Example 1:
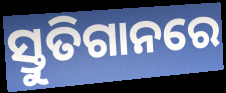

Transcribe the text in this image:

ସ୍ତୁତିଗାନରେ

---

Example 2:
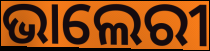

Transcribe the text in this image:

ଭାଲେରୀ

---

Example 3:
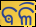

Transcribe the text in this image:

ଵଳି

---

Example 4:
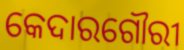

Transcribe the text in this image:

କେଦାରଗୌରୀ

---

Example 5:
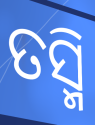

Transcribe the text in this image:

ତସ୍ମି